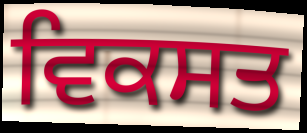
ਵਿਕਸਤ